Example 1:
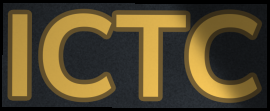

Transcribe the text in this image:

ICTC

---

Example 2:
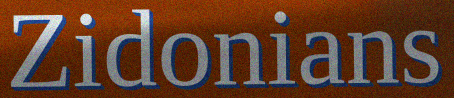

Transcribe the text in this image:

Zidonians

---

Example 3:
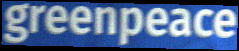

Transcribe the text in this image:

greenpeace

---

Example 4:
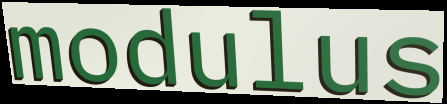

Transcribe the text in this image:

modulus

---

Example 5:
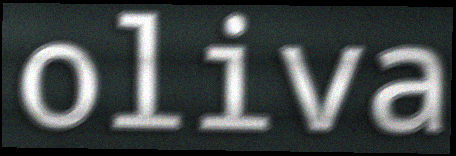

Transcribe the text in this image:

oliva